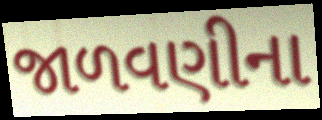
જાળવણીના